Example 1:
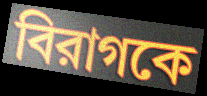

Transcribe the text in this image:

বিরাগকে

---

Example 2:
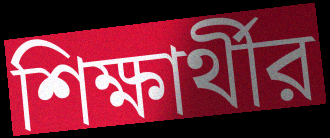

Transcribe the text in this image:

শিক্ষার্থীর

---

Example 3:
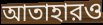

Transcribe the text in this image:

আতাহারও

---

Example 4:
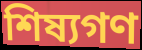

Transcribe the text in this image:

শিষ্যগণ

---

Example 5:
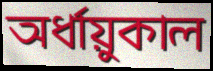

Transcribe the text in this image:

অর্ধায়ুকাল